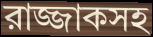
রাজ্জাকসহ